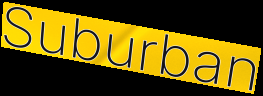
Suburban